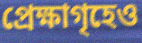
প্রেক্ষাগৃহেও